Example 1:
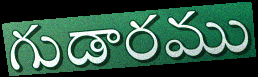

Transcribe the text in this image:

గుడారము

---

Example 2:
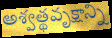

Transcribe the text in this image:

అశ్వత్థవృక్షాన్ని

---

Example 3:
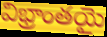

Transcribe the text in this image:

విభ్రాంతయై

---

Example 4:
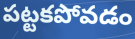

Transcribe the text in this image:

పట్టకపోవడం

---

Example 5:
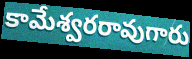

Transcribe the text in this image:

కామేశ్వరరావుగారు